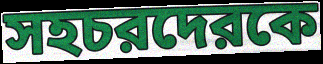
সহচরদেরকে